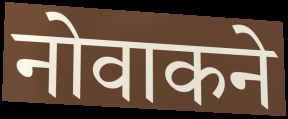
नोवाकने